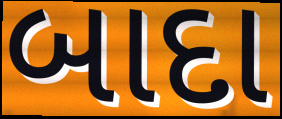
બાદા